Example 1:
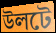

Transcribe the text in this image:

উলটে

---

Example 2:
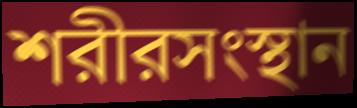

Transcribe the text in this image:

শরীরসংস্থান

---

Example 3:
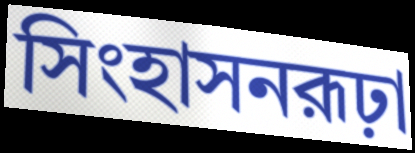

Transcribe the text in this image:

সিংহাসনরূঢ়া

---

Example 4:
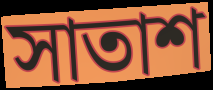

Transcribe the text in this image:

সাতাশ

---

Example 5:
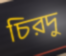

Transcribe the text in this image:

চিরদু